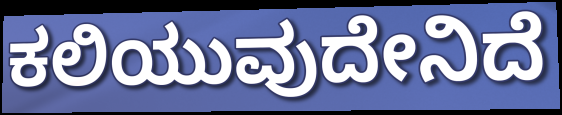
ಕಲಿಯುವುದೇನಿದೆ